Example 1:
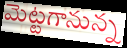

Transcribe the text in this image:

మెట్టగానున్న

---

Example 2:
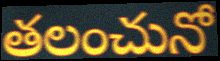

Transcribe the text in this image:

తలంచునో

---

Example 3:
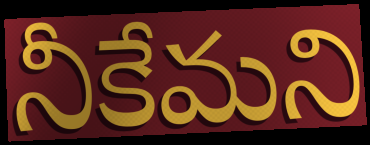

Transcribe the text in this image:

నీకేమని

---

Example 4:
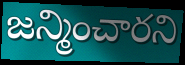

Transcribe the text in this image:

జన్మించారని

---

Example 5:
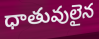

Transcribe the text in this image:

ధాతువులైన